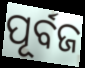
ପୂର୍ବଜ